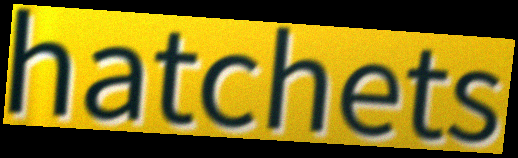
hatchets